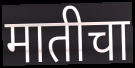
मातीचा